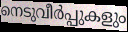
നെടുവീർപ്പുകളും